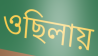
ওছিলায়